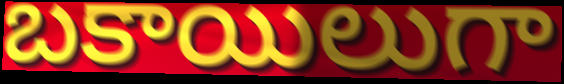
బకాయిలుగా